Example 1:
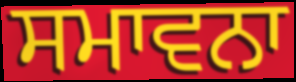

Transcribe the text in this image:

ਸਮਾਵਨਾ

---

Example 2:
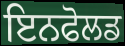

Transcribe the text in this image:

ਇਨਫੋਲਡ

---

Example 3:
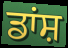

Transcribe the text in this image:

ਡਾਂਸ਼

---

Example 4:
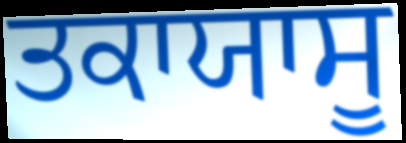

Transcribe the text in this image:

ਤਕਾਯਾਸੂ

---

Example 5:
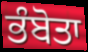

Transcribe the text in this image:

ਭੰਬੋਤਾ